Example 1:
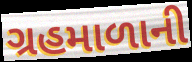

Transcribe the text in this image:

ગ્રહમાળાની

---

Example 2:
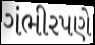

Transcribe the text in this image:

ગંભીરપણે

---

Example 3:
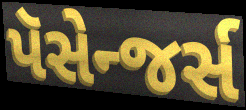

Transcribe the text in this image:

પૅસેન્જર્સ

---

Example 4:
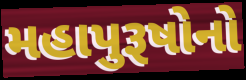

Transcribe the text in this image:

મહાપુરૂષોનો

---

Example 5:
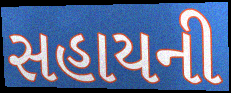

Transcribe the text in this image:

સહાયની